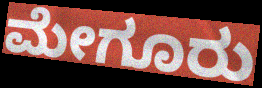
ಮೇಗೂರು